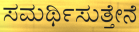
ಸಮರ್ಥಿಸುತ್ತೇನೆ